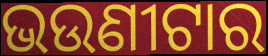
ଭଉଣୀଟାର